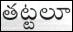
తట్టలూ